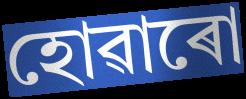
হোৱাৰো